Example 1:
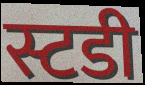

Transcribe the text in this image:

स्टडी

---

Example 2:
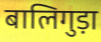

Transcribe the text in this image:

बालिगुड़ा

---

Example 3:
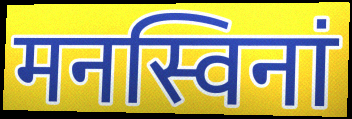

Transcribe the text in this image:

मनस्विनां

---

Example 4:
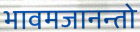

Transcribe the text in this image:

भावमजानन्तो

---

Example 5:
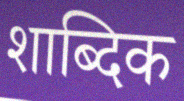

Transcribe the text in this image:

शाब्दिक